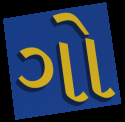
ગો